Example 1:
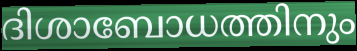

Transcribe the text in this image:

ദിശാബോധത്തിനും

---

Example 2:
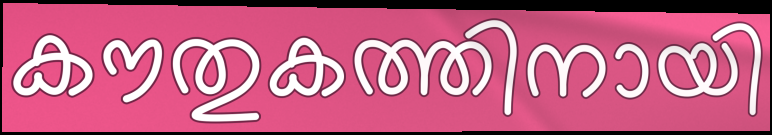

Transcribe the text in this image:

കൗതുകത്തിനായി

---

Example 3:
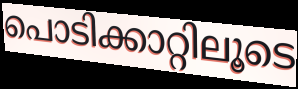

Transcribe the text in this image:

പൊടിക്കാറ്റിലൂടെ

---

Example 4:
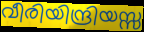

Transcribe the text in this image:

വീരിയിന്ദ്രിയസ്സ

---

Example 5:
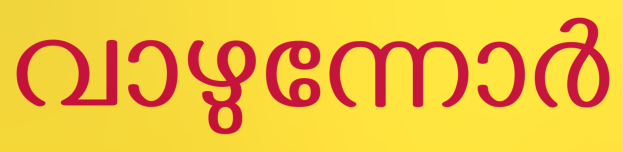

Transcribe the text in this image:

വാഴുന്നോർ